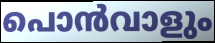
പൊൻവാളും